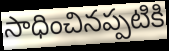
సాధించినప్పటికి